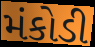
મંકોડી